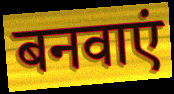
बनवाएं